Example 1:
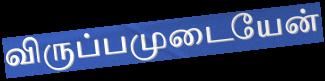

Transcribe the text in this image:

விருப்பமுடையேன்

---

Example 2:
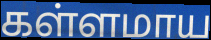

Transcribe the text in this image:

கள்ளமாய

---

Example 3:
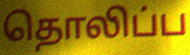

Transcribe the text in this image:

தொலிப்ப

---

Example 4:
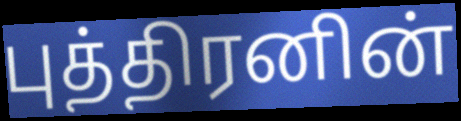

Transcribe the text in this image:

புத்திரனின்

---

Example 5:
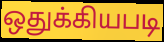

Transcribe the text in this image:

ஒதுக்கியபடி